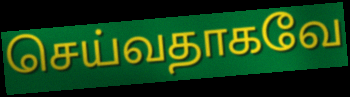
செய்வதாகவே